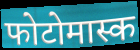
फोटोमास्क